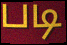
படி